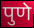
पुणे